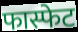
फास्फेट